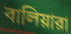
বালিয়ারা